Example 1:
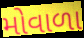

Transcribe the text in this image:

મોવાળા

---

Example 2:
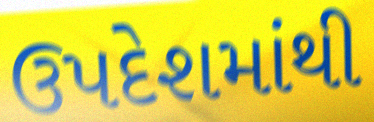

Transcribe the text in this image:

ઉપદેશમાંથી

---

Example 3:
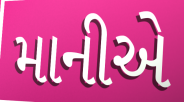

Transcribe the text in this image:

માનીએ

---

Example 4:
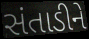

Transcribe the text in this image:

સંતાડીને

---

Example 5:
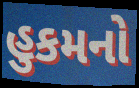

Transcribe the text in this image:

હુકમનો